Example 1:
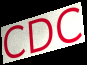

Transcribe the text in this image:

CDC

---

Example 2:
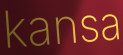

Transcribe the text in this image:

kansa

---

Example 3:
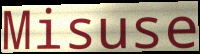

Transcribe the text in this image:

Misuse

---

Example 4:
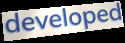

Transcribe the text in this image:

developed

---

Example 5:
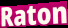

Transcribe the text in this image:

Raton